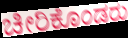
ಚೀರಿಕೊಂಡರು